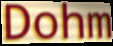
Dohm